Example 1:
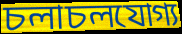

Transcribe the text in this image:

চলাচলযোগ্য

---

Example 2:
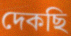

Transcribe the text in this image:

দেকছি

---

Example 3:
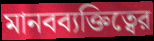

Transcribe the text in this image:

মানবব্যক্তিত্বের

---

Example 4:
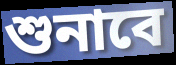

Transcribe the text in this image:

শুনাবে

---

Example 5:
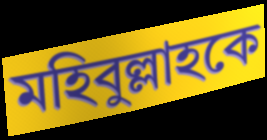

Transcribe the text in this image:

মহিবুল্লাহকে